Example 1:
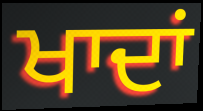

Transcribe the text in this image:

ਖਾਦਾਂ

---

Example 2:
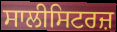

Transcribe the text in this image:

ਸਾਲੀਸਿਟਰਜ਼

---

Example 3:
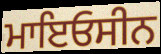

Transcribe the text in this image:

ਮਾਇਓਸੀਨ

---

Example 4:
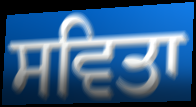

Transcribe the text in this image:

ਸਵਿਤਾ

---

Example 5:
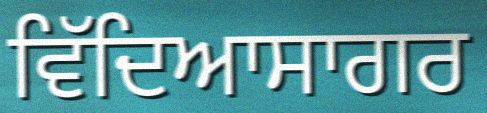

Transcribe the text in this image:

ਵਿੱਦਿਆਸਾਗਰ